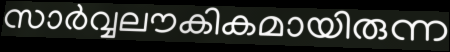
സാർവ്വലൗകികമായിരുന്ന